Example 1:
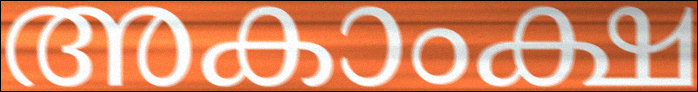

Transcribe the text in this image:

അകാംക്ഷ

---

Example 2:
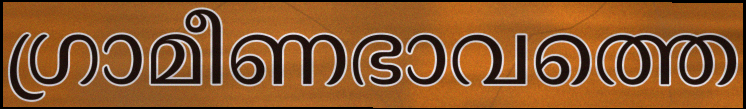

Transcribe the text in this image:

ഗ്രാമീണഭാവത്തെ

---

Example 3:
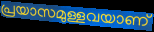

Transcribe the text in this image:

പ്രയാസമുള്ളവയാണ്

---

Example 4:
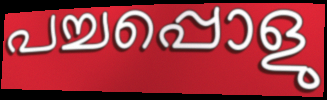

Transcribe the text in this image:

പച്ചപ്പൊളു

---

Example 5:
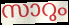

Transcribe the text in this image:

സാറും